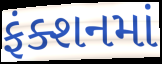
ફંક્શનમાં